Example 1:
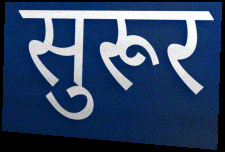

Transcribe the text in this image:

सुरूर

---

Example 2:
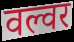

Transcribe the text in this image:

वल्वर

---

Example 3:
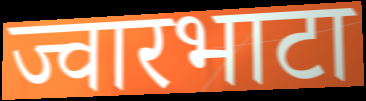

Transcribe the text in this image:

ज्वारभाटा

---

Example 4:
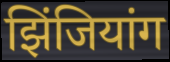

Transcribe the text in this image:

झिंजियांग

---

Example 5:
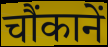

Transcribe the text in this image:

चौंकानें